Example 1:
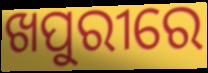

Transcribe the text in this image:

ଖପୁରୀରେ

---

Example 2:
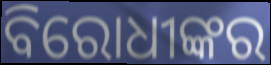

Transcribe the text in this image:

ବିରୋଧୀଙ୍କର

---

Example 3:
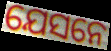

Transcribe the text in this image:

ଯେସନେ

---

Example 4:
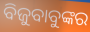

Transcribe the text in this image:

ବିଜୁବାବୁଙ୍କର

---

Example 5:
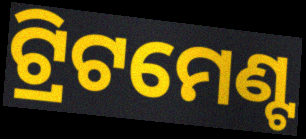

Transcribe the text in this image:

ଟ୍ରିଟମେଣ୍ଟ